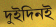
দুইদিনই